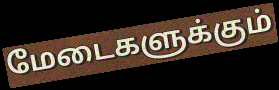
மேடைகளுக்கும்